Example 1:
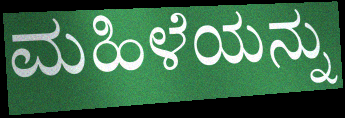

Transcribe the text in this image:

ಮಹಿಳೆಯನ್ನು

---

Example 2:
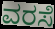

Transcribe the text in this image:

ವರಸೆ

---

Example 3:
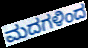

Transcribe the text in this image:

ಮದಗಳಿಂದ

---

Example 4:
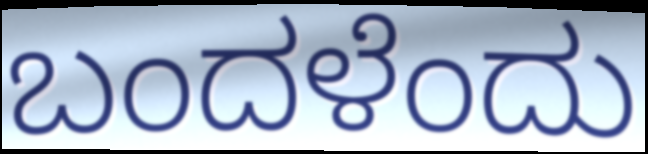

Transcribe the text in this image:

ಬಂದಳೆಂದು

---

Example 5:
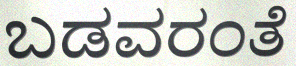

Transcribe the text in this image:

ಬಡವರಂತೆ